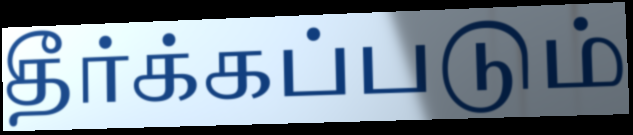
தீர்க்கப்படும்